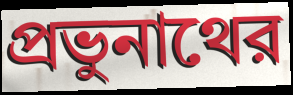
প্রভুনাথের